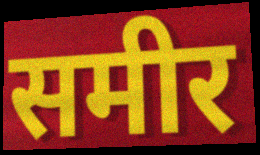
समीर